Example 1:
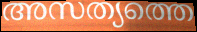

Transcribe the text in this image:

അസത്യത്തെ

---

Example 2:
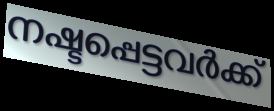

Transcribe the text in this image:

നഷ്ടപ്പെട്ടവർക്ക്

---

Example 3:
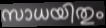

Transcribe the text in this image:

സാധയിതും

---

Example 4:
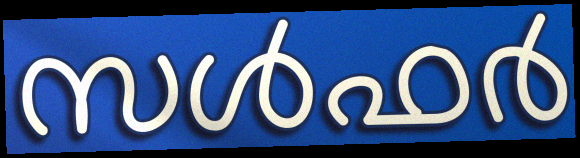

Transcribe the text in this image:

സൾഫർ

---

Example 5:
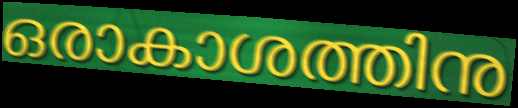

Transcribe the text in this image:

ഒരാകാശത്തിനു